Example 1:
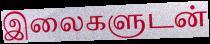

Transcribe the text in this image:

இலைகளுடன்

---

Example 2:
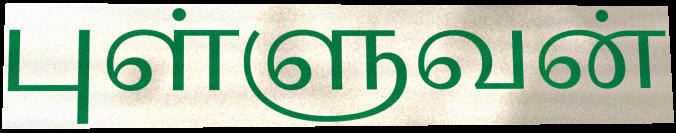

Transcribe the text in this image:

புள்ளுவன்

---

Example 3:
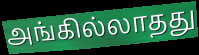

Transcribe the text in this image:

அங்கில்லாதது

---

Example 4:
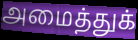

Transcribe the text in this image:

அமைத்துக்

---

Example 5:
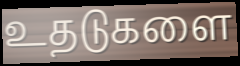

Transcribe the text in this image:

உதடுகளை